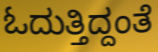
ಓದುತ್ತಿದ್ದಂತೆ